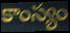
కాంస్యం